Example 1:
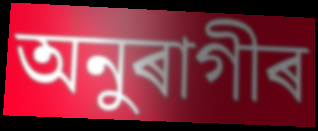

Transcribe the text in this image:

অনুৰাগীৰ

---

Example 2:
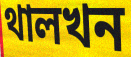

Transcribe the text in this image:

থালখন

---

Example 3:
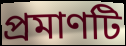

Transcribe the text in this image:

প্ৰমাণটি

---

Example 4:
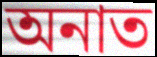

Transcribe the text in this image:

অনাত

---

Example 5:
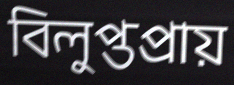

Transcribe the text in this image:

বিলুপ্তপ্ৰায়